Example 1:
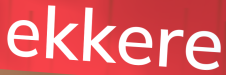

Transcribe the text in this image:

ekkere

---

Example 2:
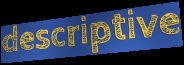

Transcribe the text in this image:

descriptive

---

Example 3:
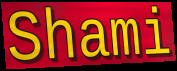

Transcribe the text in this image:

Shami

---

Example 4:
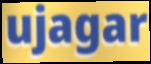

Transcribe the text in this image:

ujagar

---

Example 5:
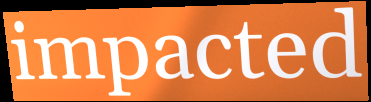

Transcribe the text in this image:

impacted